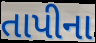
તાપીના